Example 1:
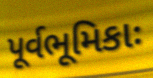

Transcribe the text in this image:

પૂર્વભૂમિકાઃ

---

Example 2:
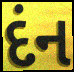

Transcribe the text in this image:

દંન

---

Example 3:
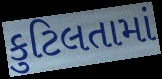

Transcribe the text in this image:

કુટિલતામાં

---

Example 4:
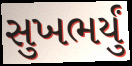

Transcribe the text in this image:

સુખભર્યું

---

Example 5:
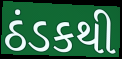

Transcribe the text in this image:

ઠંડકથી